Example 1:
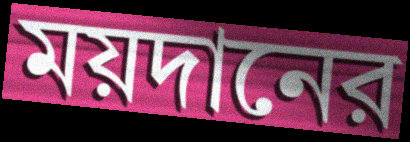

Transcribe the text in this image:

ময়দানের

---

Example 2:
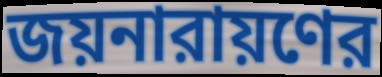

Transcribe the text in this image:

জয়নারায়ণের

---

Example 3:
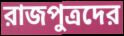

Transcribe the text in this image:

রাজপুত্রদের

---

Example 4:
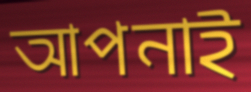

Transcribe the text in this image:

আপনাই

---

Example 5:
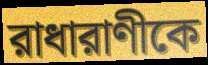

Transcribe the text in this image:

রাধারাণীকে